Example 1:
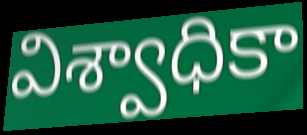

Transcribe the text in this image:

విశ్వాధికా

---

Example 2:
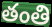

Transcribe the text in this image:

తంతి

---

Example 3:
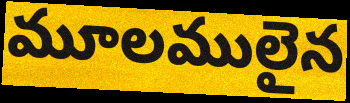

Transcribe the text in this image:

మూలములైన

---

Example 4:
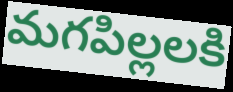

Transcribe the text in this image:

మగపిల్లలకి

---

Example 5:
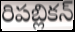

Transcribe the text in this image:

రిపబ్లికన్